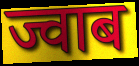
ज्वाब